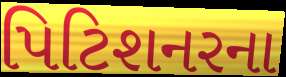
પિટિશનરના